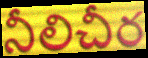
నీలిచీర